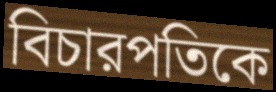
বিচারপতিকে